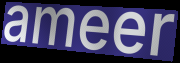
ameer